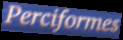
Perciformes